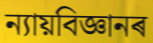
ন্যায়বিজ্ঞানৰ